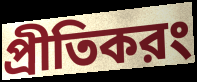
প্রীতিকরং